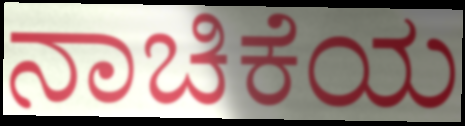
ನಾಚಿಕೆಯ